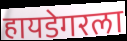
हायडेगरला